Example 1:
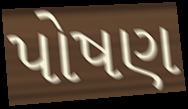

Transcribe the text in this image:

પોષણ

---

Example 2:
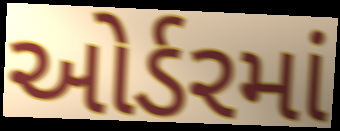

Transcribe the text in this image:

ઓર્ડરમાં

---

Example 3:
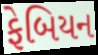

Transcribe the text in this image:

ફેબિયન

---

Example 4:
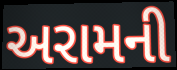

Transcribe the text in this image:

અરામની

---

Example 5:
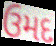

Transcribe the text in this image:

ઉમદ